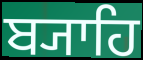
ਬ੍ਯਾਹਿ